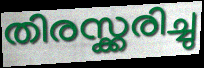
തിരസ്ക്കരിച്ചു